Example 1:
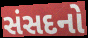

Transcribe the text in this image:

સંસદનો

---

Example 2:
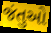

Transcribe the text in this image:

જંતુઓ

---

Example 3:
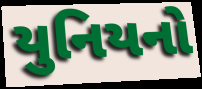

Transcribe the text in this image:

યુનિયનો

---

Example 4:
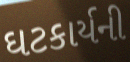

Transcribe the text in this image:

ઘટકાર્યની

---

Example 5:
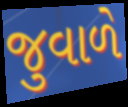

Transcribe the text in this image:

જુવાળે